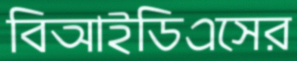
বিআইডিএসের